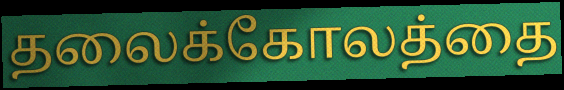
தலைக்கோலத்தை